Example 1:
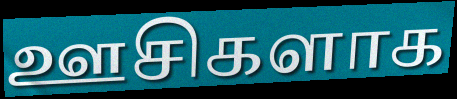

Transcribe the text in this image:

ஊசிகளாக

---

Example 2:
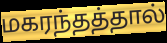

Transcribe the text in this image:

மகரந்தத்தால்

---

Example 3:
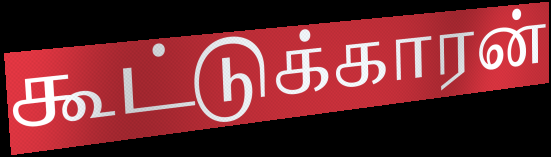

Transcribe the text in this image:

கூட்டுக்காரன்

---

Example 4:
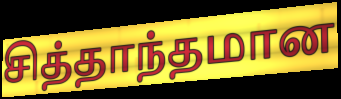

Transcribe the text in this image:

சித்தாந்தமான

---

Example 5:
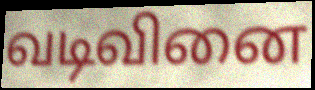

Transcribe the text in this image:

வடிவினை